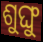
ଶୁଙ୍ଘୁ